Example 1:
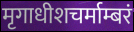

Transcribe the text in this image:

मृगाधीशचर्माम्बरं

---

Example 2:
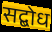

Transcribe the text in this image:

सद्बोध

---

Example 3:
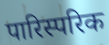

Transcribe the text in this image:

पारिस्परिक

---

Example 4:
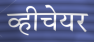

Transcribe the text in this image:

व्हीचेयर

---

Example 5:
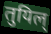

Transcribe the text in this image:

तुयिल्